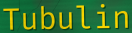
Tubulin